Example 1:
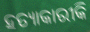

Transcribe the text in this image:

ହତ୍ୟାକାରୀକି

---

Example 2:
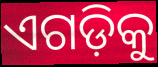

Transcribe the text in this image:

ଏଗଡ଼ିକୁ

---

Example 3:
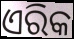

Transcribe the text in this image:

ଏରିକ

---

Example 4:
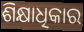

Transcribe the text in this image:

ଶିକ୍ଷାଧିକାର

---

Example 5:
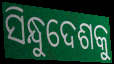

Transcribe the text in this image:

ସିନ୍ଧୁଦେଶକୁ